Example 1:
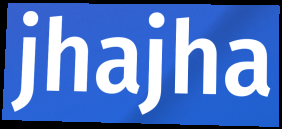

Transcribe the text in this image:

jhajha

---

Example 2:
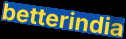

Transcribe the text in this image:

betterindia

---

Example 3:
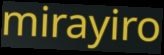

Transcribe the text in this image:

mirayiro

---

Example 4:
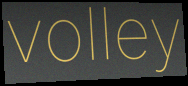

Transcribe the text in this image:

volley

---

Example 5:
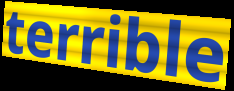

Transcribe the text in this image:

terrible